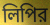
লিপির